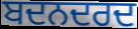
ਬਦਨਦਰਦ